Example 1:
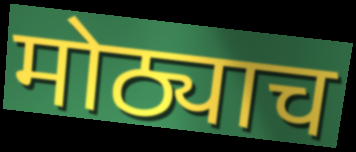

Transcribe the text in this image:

मोठ्याच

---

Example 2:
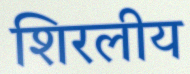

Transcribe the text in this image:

शिरलीय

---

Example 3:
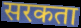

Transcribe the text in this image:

सरकता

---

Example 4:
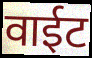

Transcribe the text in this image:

वाईट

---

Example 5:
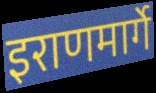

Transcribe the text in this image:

इराणमार्गे